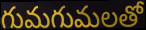
గుమగుమలతో